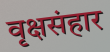
वृक्षसंहार